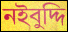
নইবুদ্দি